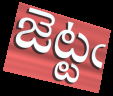
జెట్టఁ